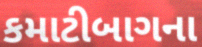
કમાટીબાગના